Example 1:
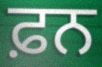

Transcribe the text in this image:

ਫ਼ਨ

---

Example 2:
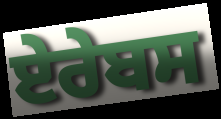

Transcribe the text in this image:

ਏਰੇਬਸ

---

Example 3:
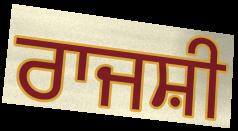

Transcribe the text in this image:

ਰਾਜਸ਼ੀ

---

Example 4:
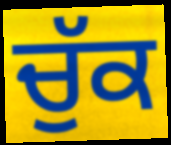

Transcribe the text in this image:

ਚੁੱਕ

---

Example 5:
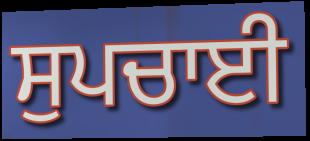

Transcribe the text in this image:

ਸੁਪਚਾਈ